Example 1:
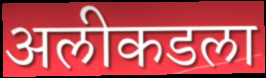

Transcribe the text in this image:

अलीकडला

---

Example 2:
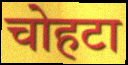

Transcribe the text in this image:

चोहटा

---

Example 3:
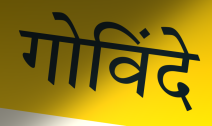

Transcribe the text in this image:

गोविंदे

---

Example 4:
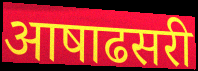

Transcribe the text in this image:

आषाढसरी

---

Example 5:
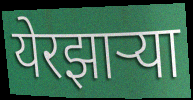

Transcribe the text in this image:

येरझार्‍या